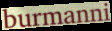
burmanni